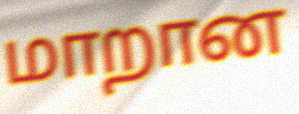
மாறான